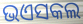
ଭଏସକଲ